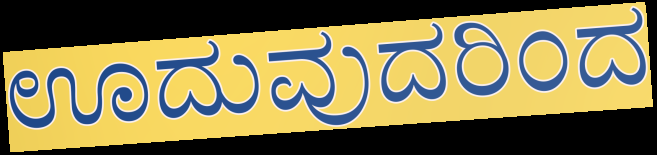
ಊದುವುದರಿಂದ